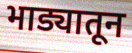
भाड्यातून